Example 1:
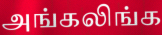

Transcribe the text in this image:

அங்கலிங்க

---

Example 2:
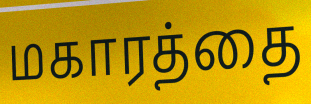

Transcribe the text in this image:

மகாரத்தை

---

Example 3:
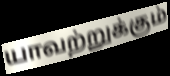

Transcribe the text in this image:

யாவற்றுக்கும்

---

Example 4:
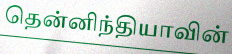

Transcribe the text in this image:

தென்னிந்தியாவின்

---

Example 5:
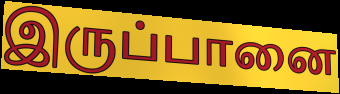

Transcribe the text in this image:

இருப்பானை